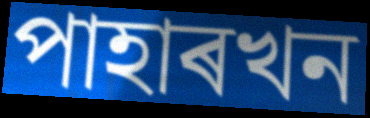
পাহাৰখন